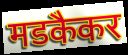
मडकैकर